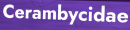
Cerambycidae